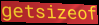
getsizeof